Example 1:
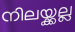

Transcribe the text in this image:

നിലയ്ക്കല്ല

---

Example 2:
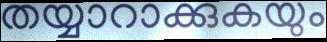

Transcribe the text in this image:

തയ്യാറാക്കുകയും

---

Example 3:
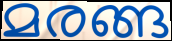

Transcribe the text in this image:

മരങ്ങ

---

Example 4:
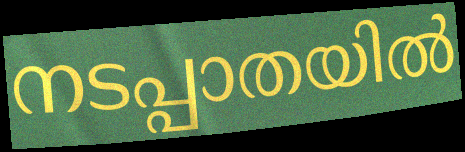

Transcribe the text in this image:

നടപ്പാതയിൽ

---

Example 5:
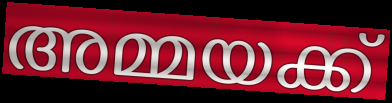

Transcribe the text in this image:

അമ്മയക്ക്